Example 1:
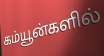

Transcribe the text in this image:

கம்யூன்களில்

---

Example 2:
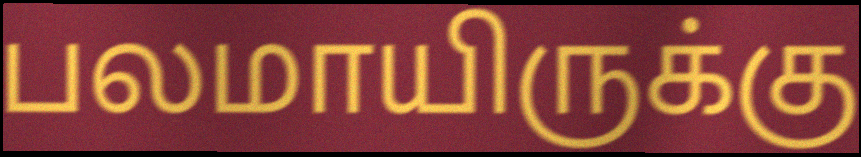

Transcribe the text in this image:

பலமாயிருக்கு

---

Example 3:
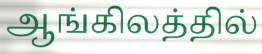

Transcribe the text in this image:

ஆங்கிலத்தில்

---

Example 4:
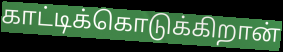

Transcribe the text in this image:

காட்டிக்கொடுக்கிறான்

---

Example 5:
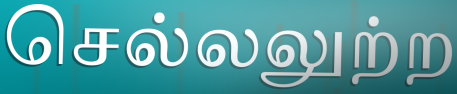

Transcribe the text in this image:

செல்லலுற்ற